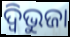
ଦ୍ଵିଭୁଜା